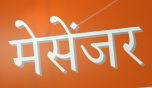
मेसेंजर